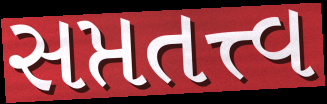
સપ્તતત્ત્વ